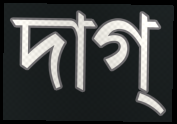
দাগ্